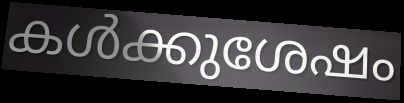
കൾക്കുശേഷം